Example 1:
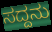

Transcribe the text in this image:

ಸದ್ದನು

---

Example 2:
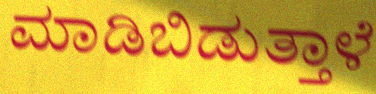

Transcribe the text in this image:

ಮಾಡಿಬಿಡುತ್ತಾಳೆ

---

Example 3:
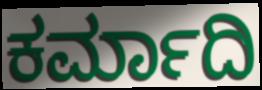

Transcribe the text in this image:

ಕರ್ಮಾದಿ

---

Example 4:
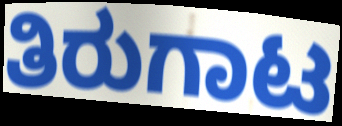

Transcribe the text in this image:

ತಿರುಗಾಟ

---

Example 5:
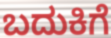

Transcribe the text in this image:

ಬದುಕಿಗೆ